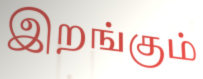
இறங்கும்